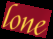
lone